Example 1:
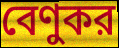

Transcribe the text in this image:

বেণুকর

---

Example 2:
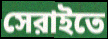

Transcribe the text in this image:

সেরাইতে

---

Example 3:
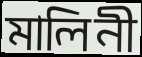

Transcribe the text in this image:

মালিনী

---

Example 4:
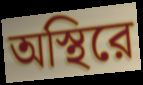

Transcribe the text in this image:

অস্থিরে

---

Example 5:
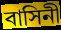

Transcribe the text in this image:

বাসিনী